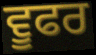
ਵੂਫਰ